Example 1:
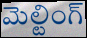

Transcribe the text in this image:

మెల్టింగ్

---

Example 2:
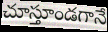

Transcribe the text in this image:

చూస్తూండగానే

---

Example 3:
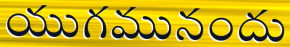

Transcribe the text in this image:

యుగమునందు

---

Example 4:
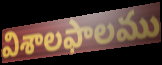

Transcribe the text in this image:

విశాలఫాలము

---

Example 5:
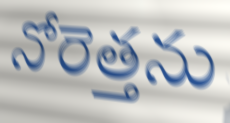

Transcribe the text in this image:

నోరెత్తను